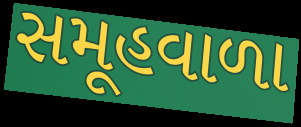
સમૂહવાળા